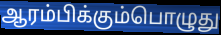
ஆரம்பிக்கும்பொழுது